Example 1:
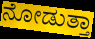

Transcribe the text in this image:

ನೋಡುತ್ತಾ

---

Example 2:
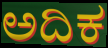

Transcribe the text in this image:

ಅದಿಕ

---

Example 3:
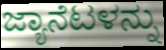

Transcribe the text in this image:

ಜ್ಯಾನೆಟಳನ್ನು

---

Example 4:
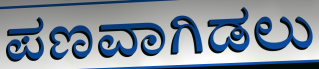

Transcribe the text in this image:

ಪಣವಾಗಿಡಲು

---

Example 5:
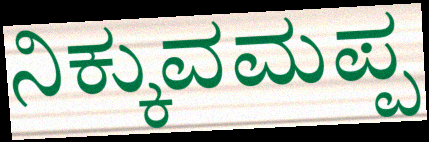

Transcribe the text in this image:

ನಿಕ್ಕುವಮಪ್ಪ